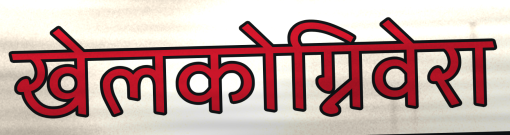
खेलकोग्निवेरा